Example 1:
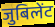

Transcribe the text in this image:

जुबिलेंट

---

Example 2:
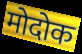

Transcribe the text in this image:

मोदोक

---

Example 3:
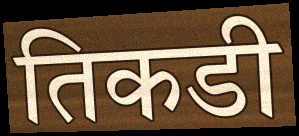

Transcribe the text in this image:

तिकडी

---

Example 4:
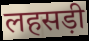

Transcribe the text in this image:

लहसड़ी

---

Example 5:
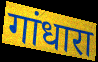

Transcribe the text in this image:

गांधारा